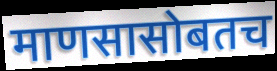
माणसासोबतच